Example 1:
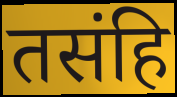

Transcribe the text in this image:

तसंहि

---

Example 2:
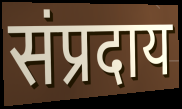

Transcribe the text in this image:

संप्रदाय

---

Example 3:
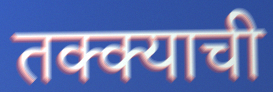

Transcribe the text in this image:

तक्क्याची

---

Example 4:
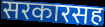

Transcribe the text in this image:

सरकारसह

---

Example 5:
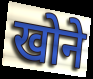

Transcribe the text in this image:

खोने